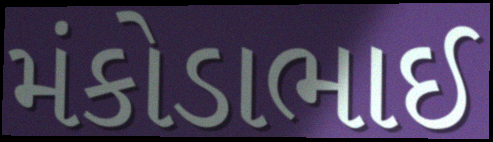
મંકોડાભાઈ